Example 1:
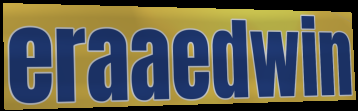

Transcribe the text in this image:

eraaedwin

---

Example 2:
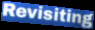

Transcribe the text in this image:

Revisiting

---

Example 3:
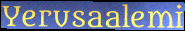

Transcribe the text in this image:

Yerusaalemi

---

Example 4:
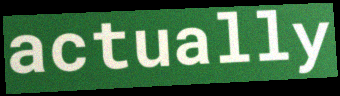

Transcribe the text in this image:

actually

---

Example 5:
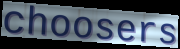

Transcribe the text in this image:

choosers